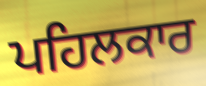
ਪਹਿਲਕਾਰ